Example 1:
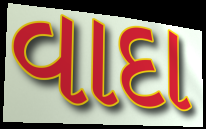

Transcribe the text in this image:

વાદા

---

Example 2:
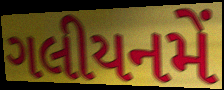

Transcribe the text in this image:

ગલીયનમેં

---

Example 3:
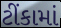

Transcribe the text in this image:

ટીંકામાં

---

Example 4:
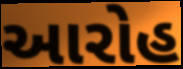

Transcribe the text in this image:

આરોહ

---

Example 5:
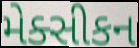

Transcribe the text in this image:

મેક્સીકન